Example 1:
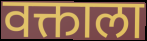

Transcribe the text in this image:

वक्ताला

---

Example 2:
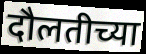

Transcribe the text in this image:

दौलतीच्या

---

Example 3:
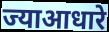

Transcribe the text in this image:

ज्याआधारे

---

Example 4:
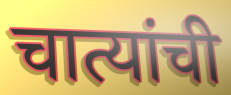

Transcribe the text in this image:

चात्यांची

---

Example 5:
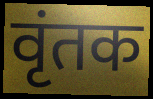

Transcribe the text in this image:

वृंतक